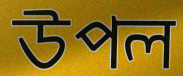
উপল